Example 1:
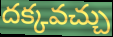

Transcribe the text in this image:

దక్కవచ్చు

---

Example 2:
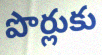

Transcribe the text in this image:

పొర్లుకు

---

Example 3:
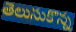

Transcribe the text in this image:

తెలుసుకొన్న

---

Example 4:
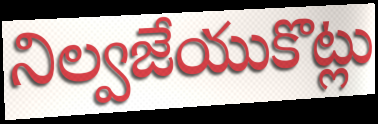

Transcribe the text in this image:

నిల్వజేయుకొట్లు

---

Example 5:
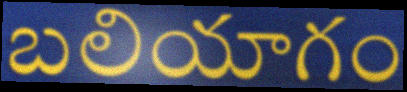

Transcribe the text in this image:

బలియాగం